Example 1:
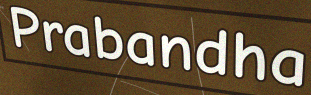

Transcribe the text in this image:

Prabandha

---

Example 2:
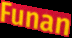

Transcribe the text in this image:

Funan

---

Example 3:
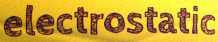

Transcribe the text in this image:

electrostatic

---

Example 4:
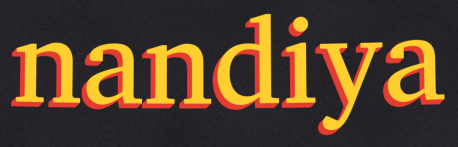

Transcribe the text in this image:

nandiya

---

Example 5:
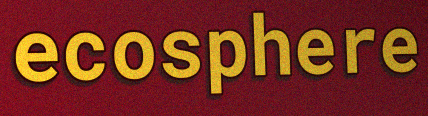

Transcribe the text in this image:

ecosphere